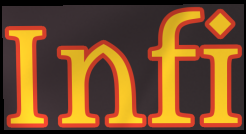
Infi